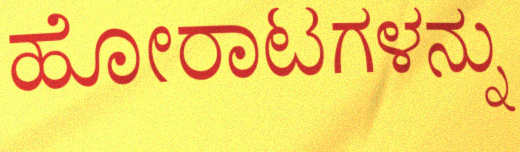
ಹೋರಾಟಗಳನ್ನು